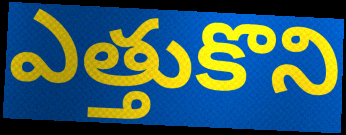
ఎత్తుకొని